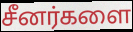
சீனர்களை